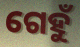
ଗେହୁଁ